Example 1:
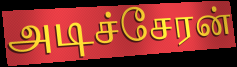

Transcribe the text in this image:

அடிச்சேரன்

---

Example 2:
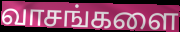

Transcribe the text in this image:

வாசங்களை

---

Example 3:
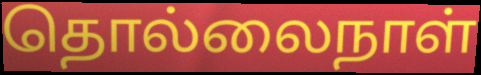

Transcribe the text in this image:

தொல்லைநாள்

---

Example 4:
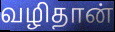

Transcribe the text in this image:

வழிதான்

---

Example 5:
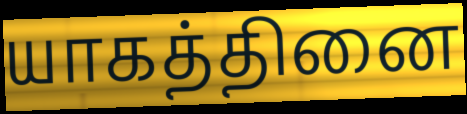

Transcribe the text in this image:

யாகத்தினை